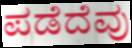
ಪಡೆದೆವು